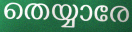
തെയ്യാരേ